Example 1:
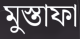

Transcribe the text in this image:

মুস্তাফা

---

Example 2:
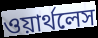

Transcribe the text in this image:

ওয়ার্থলেস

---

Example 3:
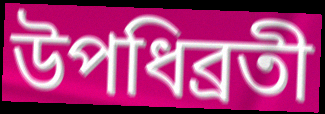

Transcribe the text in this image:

উপধিব্রতী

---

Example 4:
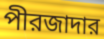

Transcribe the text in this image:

পীরজাদার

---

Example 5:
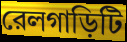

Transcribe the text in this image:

রেলগাড়িটি